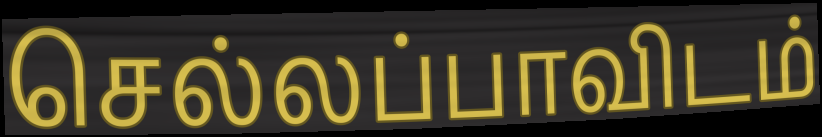
செல்லப்பாவிடம்